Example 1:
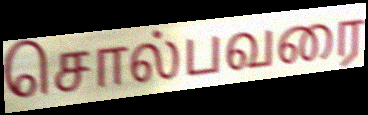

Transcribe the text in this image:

சொல்பவரை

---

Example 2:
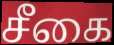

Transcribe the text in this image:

சீகை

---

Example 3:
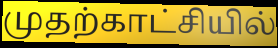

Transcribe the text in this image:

முதற்காட்சியில்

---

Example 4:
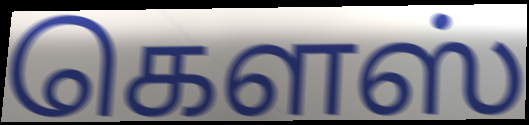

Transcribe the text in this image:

கௌஸ்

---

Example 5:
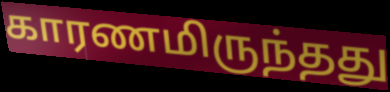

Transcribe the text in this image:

காரணமிருந்தது